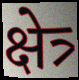
क्षेत्र्